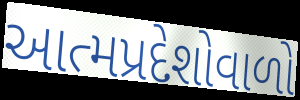
આત્મપ્રદેશોવાળો